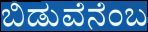
ಬಿಡುವೆನೆಂಬ